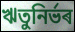
ঋতুনিৰ্ভৰ